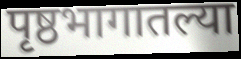
पृष्ठभागातल्या